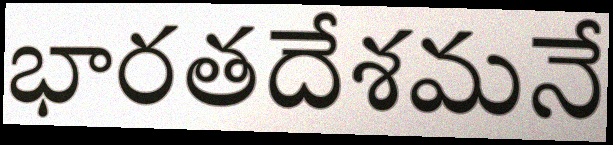
భారతదేశమనే